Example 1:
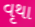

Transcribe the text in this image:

વૃથા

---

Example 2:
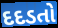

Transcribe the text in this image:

દદડતો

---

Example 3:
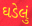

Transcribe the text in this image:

ઘડેલું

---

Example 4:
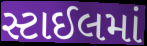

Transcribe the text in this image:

સ્ટાઈલમાં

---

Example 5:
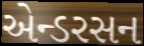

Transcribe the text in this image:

એન્ડરસન